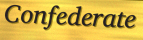
Confederate